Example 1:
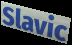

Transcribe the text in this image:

Slavic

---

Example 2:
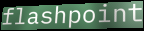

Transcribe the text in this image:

flashpoint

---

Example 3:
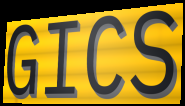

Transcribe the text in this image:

GICS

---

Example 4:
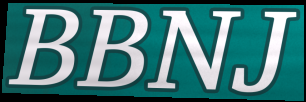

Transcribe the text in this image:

BBNJ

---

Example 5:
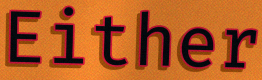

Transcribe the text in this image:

Either